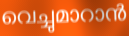
വെച്ചുമാറാൻ